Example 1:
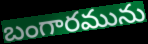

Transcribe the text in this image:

బంగారమును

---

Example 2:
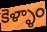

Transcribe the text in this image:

కెళ్ళాం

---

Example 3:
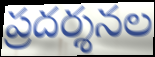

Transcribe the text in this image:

ప్రదర్శనల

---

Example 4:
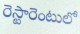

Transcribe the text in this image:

రెస్టారెంటులో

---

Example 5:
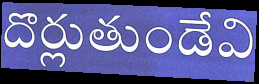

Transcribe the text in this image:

దొర్లుతుండేవి